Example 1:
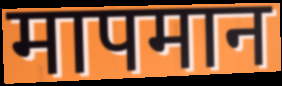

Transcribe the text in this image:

मापमान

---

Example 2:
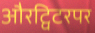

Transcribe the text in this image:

औरट्विटरपर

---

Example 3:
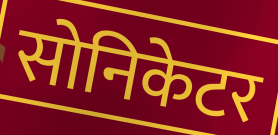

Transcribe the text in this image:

सोनिकेटर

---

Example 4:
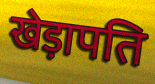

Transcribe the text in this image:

खेड़ापति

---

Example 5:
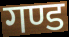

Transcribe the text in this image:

गण्ड